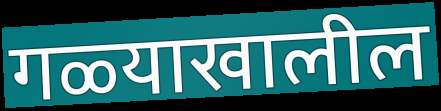
गळ्याखालील